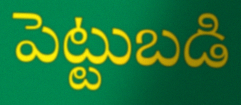
పెట్టుబడి